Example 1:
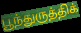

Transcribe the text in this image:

பூந்துருத்திக்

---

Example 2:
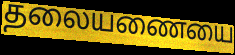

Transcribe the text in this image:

தலையணையை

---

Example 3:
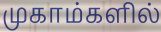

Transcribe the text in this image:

முகாம்களில்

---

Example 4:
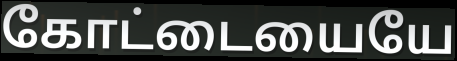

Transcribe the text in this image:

கோட்டையையே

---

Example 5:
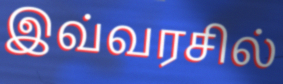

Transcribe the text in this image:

இவ்வரசில்